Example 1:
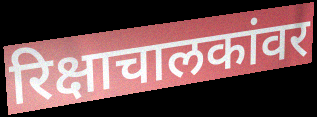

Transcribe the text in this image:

रिक्षाचालकांवर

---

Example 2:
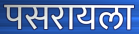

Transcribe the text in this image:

पसरायला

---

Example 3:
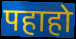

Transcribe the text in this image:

पहाहो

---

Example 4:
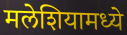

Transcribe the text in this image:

मलेशियामध्ये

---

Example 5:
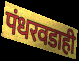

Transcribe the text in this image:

पंधरवडाही